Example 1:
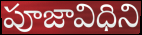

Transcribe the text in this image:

పూజావిధిని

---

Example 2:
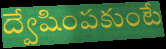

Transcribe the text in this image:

ద్వేషింపకుంటే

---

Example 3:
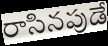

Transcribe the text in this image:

రాసినపుడే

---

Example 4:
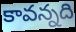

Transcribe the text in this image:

కావన్నది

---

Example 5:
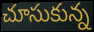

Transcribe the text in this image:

చూసుకున్న